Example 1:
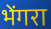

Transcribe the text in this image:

भेंगरा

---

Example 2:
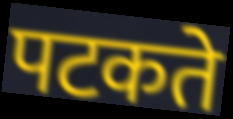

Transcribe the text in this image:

पटकते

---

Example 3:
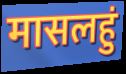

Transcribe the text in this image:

मासलहुं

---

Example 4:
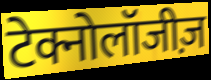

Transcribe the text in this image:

टेक्नोलॉजीज़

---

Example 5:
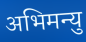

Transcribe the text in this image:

अभिमन्यु